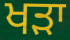
ਖਡ਼ਾ